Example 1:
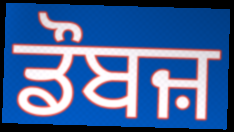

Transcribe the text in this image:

ਡੌਬਜ਼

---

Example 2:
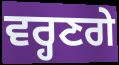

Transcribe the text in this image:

ਵਰ੍ਹਣਗੇ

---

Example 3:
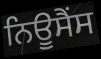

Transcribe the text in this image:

ਨਿਊਸੈਂਸ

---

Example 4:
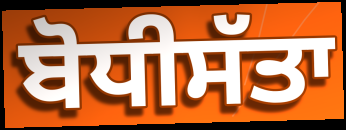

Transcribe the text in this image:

ਬੋਧੀਸੱਤਾ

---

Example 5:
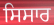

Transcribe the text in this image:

ਸਿਸਾਰ